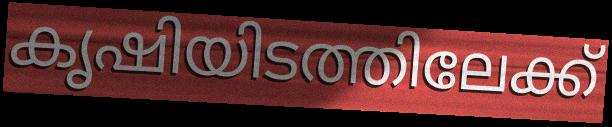
കൃഷിയിടത്തിലേക്ക്